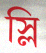
স্লি